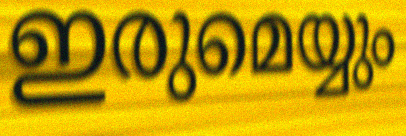
ഇരുമെയ്യും